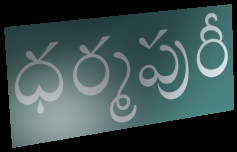
ధర్మపురీ